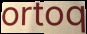
ortoq